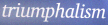
triumphalism